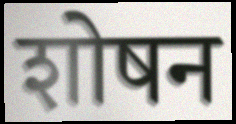
शोषन